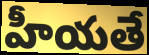
హీయతే